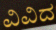
ವಿವಿದ